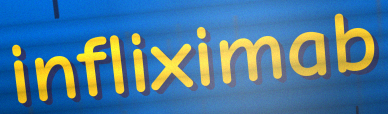
infliximab